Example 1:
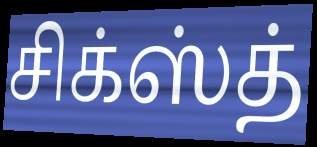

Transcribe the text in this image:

சிக்ஸ்த்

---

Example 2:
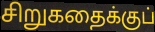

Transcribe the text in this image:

சிறுகதைக்குப்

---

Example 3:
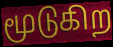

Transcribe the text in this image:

மூடுகிற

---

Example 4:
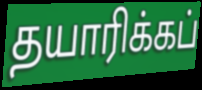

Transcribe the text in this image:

தயாரிக்கப்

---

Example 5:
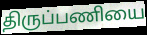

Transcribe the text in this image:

திருப்பணியை